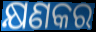
କ୍ଷଣକର